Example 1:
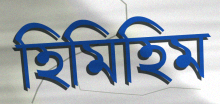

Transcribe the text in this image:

হিমিহিম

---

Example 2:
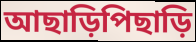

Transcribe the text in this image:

আছাড়িপিছাড়ি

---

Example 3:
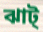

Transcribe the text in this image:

ঝাট্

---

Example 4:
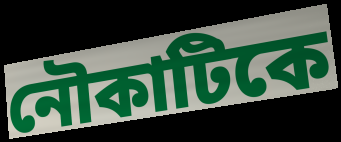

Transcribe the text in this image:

নৌকাটিকে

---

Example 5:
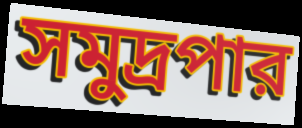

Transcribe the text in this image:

সমুদ্রপার